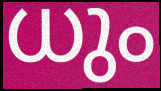
ധും